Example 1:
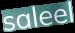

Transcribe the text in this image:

saleel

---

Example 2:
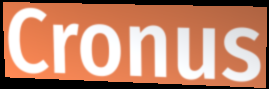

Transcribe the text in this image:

Cronus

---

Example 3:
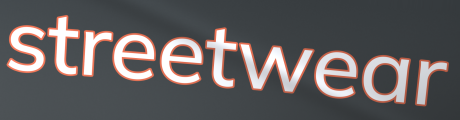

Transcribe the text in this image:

streetwear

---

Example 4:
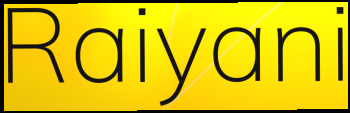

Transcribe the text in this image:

Raiyani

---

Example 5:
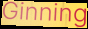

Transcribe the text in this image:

Ginning